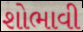
શોભાવી